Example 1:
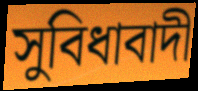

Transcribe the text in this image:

সুবিধাবাদী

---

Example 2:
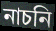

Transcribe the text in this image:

নাচনি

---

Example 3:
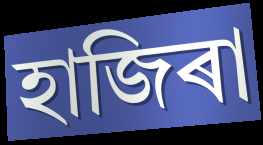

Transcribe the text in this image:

হাজিৰা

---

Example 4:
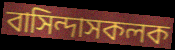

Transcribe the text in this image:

বাসিন্দাসকলক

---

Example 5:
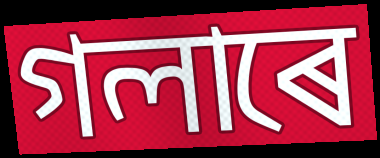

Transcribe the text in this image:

গলাৰে